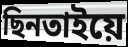
ছিনতাইয়ে